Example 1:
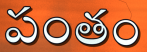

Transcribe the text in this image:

పంతం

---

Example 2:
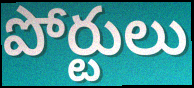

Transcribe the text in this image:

పోర్టులు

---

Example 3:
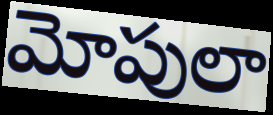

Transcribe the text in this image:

మోపులా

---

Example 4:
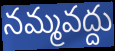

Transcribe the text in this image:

నమ్మవద్దు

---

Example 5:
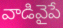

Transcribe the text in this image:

వాడివైపే